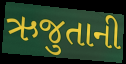
ઋજુતાની